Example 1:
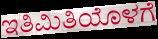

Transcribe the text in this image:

ಇತಿಮಿತಿಯೊಳಗೆ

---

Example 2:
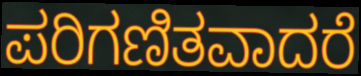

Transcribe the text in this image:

ಪರಿಗಣಿತವಾದರೆ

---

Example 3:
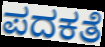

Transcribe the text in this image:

ಪದಕತೆ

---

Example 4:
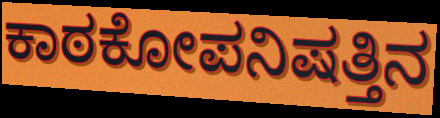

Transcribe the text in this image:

ಕಾಠಕೋಪನಿಷತ್ತಿನ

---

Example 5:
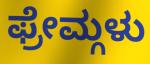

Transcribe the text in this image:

ಫ್ರೇಮ್ಗಳು